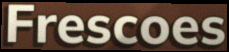
Frescoes